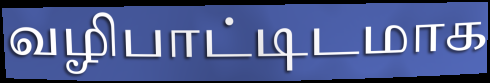
வழிபாட்டிடமாக